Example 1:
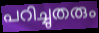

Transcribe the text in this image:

പറിച്ചുതരും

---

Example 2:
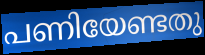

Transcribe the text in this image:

പണിയേണ്ടതു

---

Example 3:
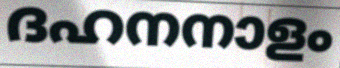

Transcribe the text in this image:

ദഹനനാളം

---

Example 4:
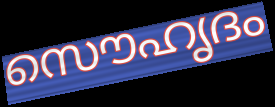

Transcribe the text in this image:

സൌഹൃദം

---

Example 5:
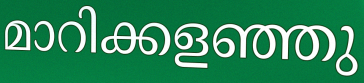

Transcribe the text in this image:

മാറിക്കളഞ്ഞു